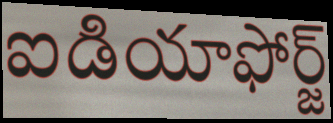
ఐడియాఫోర్జ్